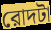
রোদটা